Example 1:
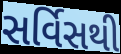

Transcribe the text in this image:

સર્વિસથી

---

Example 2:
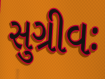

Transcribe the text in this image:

સુગ્રીવઃ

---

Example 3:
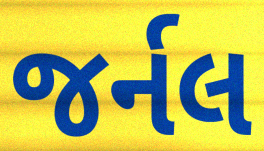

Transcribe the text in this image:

જર્નલ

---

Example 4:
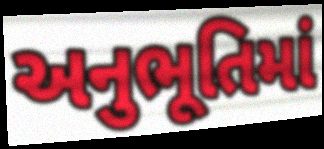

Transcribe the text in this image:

અનુભૂતિમાં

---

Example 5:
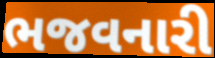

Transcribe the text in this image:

ભજવનારી